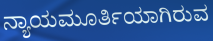
ನ್ಯಾಯಮೂರ್ತಿಯಾಗಿರುವ